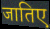
जातिए